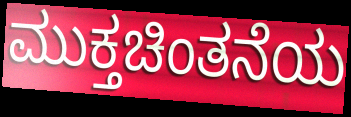
ಮುಕ್ತಚಿಂತನೆಯ